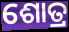
ଶୋତ୍ର